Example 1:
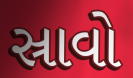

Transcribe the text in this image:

સ્રાવો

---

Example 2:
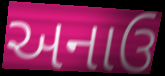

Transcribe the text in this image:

અનાઉ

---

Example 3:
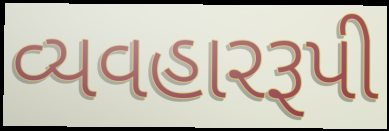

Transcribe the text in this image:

વ્યવહારરૂપી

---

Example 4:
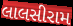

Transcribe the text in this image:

લાલસીરામ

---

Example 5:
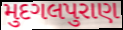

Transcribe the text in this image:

મુદગલપુરાણ